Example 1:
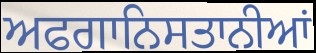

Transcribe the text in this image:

ਅਫਗਾਨਿਸਤਾਨੀਆਂ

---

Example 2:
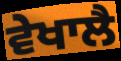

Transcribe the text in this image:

ਵੇਖਾਲੈ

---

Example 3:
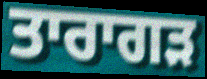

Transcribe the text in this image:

ਤਾਰਾਗੜ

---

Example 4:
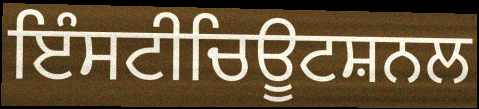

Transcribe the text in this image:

ਇੰਸਟੀਚਿਊਟਸ਼ਨਲ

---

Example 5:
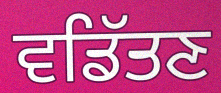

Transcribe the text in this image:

ਵਡਿੱਤਣ